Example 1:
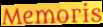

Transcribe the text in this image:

Memoris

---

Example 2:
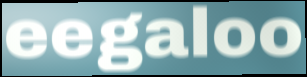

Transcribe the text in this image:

eegaloo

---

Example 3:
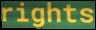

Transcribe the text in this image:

rights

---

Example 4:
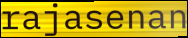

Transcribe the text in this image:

rajasenan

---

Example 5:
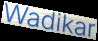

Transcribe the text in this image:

Wadikar